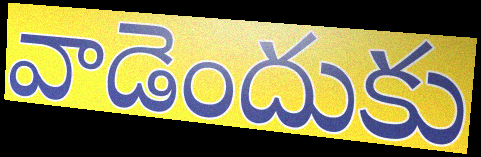
వాడెందుకు